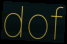
dof